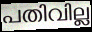
പതിവില്ല